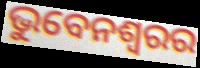
ଭୁବେନଶ୍ବରର